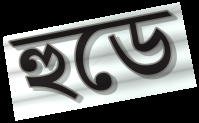
হুডে